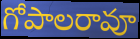
గోపాలరావూ